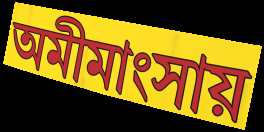
অমীমাংসায়